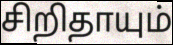
சிறிதாயும்